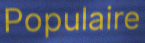
Populaire